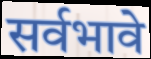
सर्वभावे